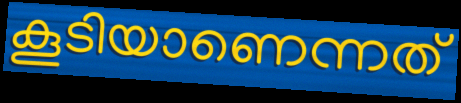
കൂടിയാണെന്നത്